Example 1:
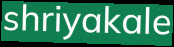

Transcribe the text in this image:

shriyakale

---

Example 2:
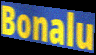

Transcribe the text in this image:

Bonalu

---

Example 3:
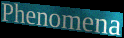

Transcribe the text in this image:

Phenomena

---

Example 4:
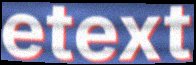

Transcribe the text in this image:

etext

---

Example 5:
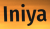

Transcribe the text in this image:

Iniya